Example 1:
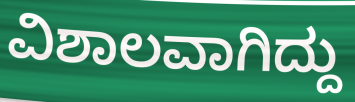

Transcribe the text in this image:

ವಿಶಾಲವಾಗಿದ್ದು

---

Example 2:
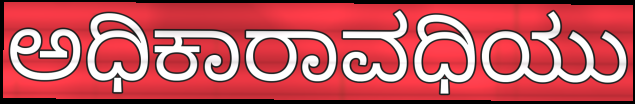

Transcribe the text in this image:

ಅಧಿಕಾರಾವಧಿಯು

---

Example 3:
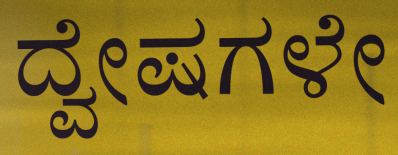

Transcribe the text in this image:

ದ್ವೇಷಗಳೇ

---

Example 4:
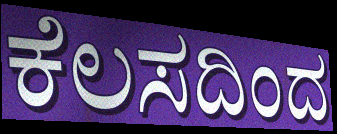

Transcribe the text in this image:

ಕೆಲಸದಿಂದ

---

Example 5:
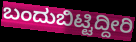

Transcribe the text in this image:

ಬಂದುಬಿಟ್ಟಿದ್ದೀರಿ